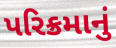
પરિક્રમાનું